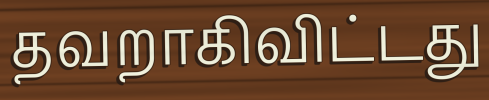
தவறாகிவிட்டது